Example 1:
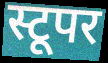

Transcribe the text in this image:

स्टूपर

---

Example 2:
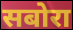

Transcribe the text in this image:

सबोरा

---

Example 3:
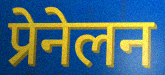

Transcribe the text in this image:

प्रेनेलन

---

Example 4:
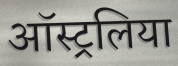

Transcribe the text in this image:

ऑस्ट्रलिया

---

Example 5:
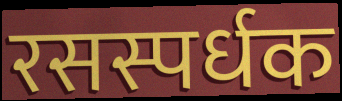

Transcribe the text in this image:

रसस्पर्धक